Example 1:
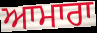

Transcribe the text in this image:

ਆਮਾਰਾ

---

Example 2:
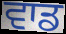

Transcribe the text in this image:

ਵਾਡ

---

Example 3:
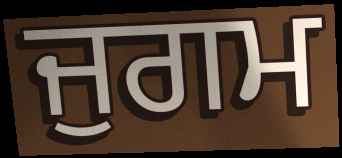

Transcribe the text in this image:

ਜੁਗਮ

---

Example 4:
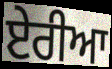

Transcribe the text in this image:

ਏਰੀਆ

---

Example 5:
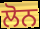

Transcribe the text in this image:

ਲੋਨ